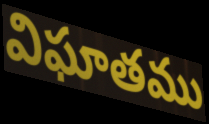
విఘాతము